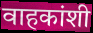
वाहकांशी